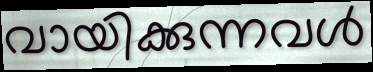
വായിക്കുന്നവൾ